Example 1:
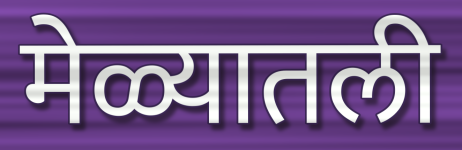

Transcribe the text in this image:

मेळ्यातली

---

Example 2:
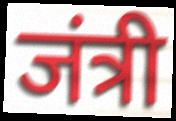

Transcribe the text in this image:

जंत्री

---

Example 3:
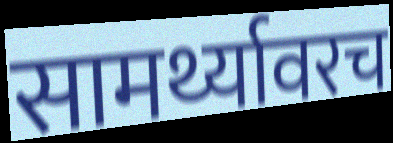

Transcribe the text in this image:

सामर्थ्यावरच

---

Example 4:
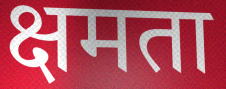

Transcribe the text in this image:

क्षमता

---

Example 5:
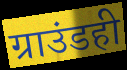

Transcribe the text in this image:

ग्राउंडही